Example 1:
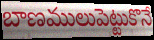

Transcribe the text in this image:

బాణములుపెట్టుకొనే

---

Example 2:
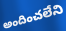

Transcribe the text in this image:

అందించలేని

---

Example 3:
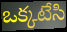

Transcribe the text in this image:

ఒక్కటేసి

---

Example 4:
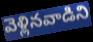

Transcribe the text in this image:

వెళ్లినవాడిని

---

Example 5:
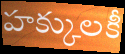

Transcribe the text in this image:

హక్కులకీ